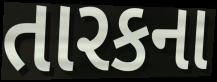
તારકના